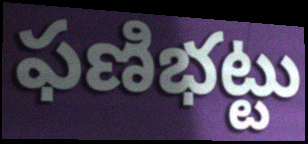
ఫణిభట్టు